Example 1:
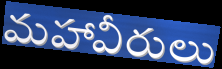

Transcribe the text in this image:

మహావీరులు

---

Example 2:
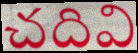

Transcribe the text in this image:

చదివి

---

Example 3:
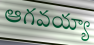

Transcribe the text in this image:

ఆగవయ్యా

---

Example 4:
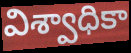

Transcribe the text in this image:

విశ్వాధికా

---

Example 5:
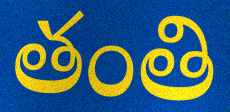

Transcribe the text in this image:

తంతి